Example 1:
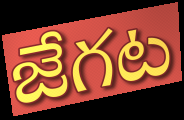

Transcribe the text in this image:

జేగట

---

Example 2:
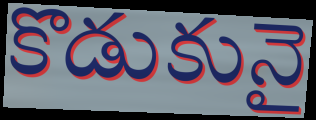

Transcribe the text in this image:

కొడుకునై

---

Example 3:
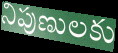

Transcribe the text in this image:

నిపుణులకు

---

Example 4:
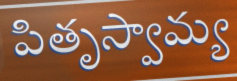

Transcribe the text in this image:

పితృస్వామ్య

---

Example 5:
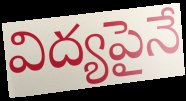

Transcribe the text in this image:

విద్యపైనే